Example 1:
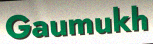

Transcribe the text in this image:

Gaumukh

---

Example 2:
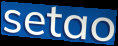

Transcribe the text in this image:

setao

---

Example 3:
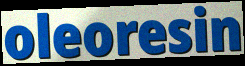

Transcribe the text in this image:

oleoresin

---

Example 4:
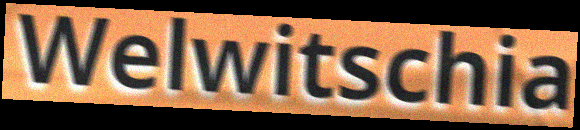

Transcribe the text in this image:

Welwitschia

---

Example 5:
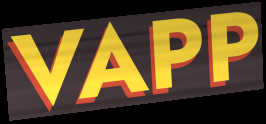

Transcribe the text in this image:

VAPP